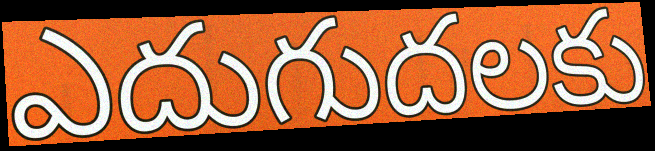
ఎదుగుదలకు